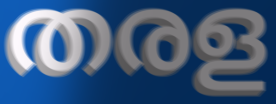
തരള